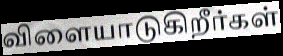
விளையாடுகிறீர்கள்